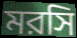
মরসি